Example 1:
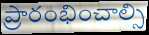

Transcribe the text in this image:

ప్రారంభించాల్సి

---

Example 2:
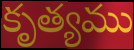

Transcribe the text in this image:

కృత్యము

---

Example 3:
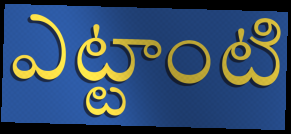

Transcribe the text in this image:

ఎట్టాంటి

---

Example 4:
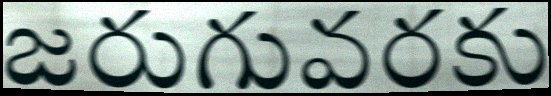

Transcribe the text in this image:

జరుగువరకు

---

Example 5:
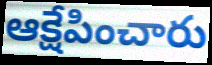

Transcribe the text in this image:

ఆక్షేపించారు